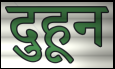
दुहून